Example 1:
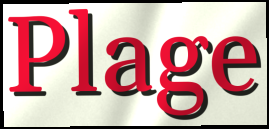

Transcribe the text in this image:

Plage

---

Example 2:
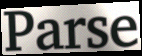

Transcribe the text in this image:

Parse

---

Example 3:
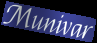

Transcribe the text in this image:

Munivar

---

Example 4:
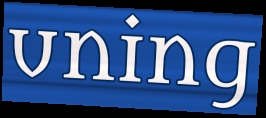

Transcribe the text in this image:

uning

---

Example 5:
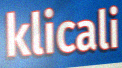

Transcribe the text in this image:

klicali